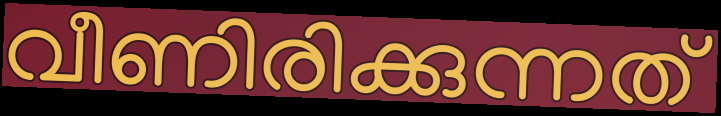
വീണിരിക്കുന്നത്